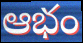
ఆభం